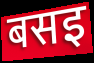
बसइ